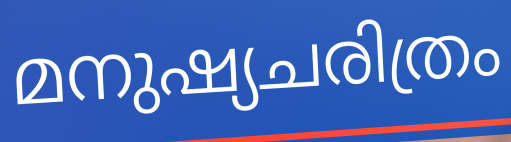
മനുഷ്യചരിത്രം